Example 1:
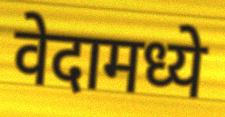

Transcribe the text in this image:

वेदामध्ये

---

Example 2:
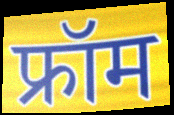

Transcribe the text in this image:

फ्रॉम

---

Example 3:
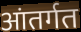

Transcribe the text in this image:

आंतर्गत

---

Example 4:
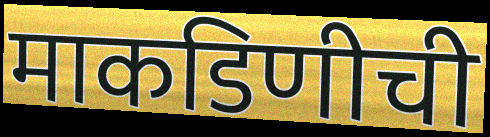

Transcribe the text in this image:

माकडिणीची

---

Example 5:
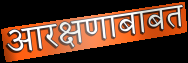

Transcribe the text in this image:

आरक्षणाबाबत